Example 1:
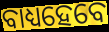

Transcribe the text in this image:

ବାଧ୍ୟହେବେ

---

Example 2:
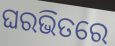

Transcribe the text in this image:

ଘରଭିତରେ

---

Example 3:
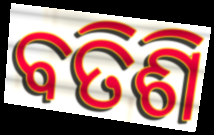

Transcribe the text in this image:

ବତିଶି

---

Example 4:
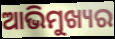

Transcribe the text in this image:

ଆଭିମୁଖ୍ୟର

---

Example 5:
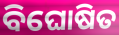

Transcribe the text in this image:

ବିଘୋଷିତ